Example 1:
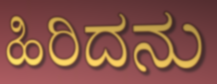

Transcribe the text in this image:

ಹಿರಿದನು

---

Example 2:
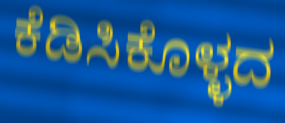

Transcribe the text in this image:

ಕೆಡಿಸಿಕೊಳ್ಳದ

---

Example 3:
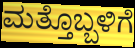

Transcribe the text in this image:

ಮತ್ತೊಬ್ಬಳಿಗೆ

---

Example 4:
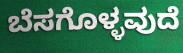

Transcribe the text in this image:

ಬೆಸಗೊಳ್ಳವುದೆ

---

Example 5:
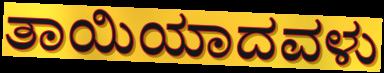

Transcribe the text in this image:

ತಾಯಿಯಾದವಳು